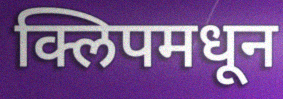
क्लिपमधून